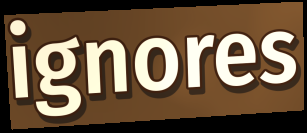
ignores